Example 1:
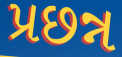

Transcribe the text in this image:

પ્રછન્ન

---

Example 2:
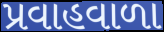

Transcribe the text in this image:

પ્રવાહવાળા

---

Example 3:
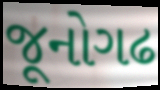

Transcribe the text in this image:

જૂનોગઢ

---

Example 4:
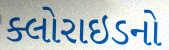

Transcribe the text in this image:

ક્લોરાઇડનો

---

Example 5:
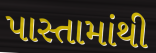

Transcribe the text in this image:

પાસ્તામાંથી